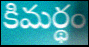
కిమర్థం